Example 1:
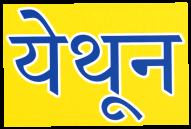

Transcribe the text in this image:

येथून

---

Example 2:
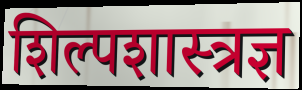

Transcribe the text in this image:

शिल्पशास्त्रज्ञ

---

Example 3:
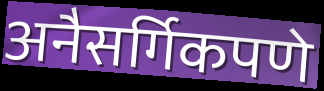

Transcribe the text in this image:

अनैसर्गिकपणे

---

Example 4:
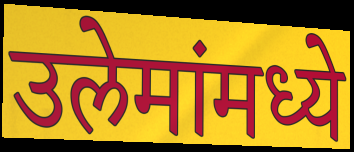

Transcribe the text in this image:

उलेमांमध्ये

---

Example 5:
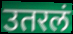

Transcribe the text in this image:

उतरलं